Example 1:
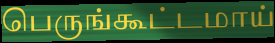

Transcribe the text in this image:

பெருங்கூட்டமாய்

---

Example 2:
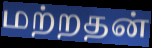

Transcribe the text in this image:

மற்றதன்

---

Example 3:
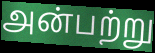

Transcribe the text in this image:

அன்பற்று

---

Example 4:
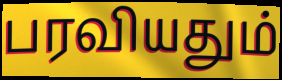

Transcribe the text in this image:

பரவியதும்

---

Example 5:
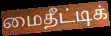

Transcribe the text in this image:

மைதீட்டிக்